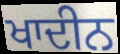
ਖਾਦੀਨ